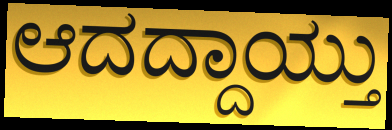
ಆದದ್ದಾಯ್ತು